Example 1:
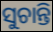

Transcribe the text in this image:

ସୁଚାନ୍ତି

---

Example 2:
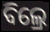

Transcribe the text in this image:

ବିଲ୍ରେ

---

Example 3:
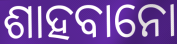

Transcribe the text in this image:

ଶାହବାନୋ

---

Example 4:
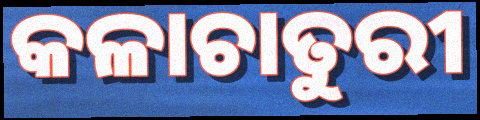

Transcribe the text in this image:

କଳାଚାତୁରୀ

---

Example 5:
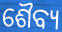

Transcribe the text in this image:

ଶୈବ୍ୟ